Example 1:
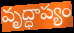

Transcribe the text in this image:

వృద్ధాప్యం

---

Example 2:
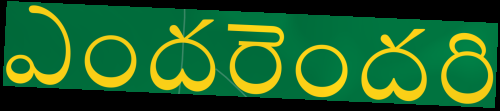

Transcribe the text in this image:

ఎందరెందరి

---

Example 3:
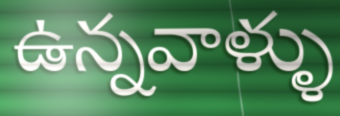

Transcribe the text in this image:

ఉన్నవాళ్ళు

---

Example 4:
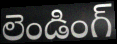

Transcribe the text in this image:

లెండింగ్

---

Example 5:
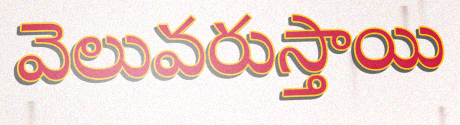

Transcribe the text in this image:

వెలువరుస్తాయి